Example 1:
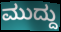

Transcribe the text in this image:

ಮುದ್ದು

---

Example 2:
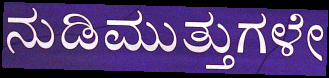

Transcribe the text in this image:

ನುಡಿಮುತ್ತುಗಳೇ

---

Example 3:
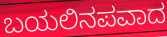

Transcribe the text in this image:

ಬಯಲಿನಪವಾದ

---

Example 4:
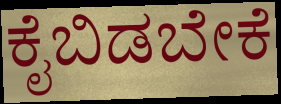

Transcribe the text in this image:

ಕೈಬಿಡಬೇಕೆ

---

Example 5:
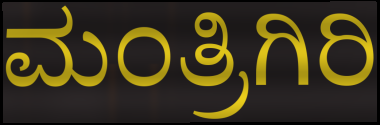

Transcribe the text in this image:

ಮಂತ್ರಿಗಿರಿ